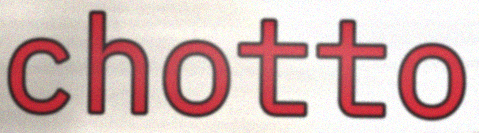
chotto